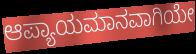
ಆಪ್ಯಾಯಮಾನವಾಗಿಯೇ